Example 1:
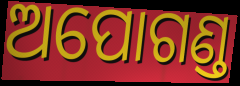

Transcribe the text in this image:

ଅପୋଗଣ୍ଡ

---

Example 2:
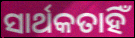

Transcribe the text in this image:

ସାର୍ଥକତାହିଁ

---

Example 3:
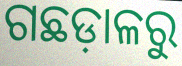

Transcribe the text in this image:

ଗଛଡ଼ାଳରୁ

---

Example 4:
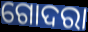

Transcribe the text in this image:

ଗୋଦରା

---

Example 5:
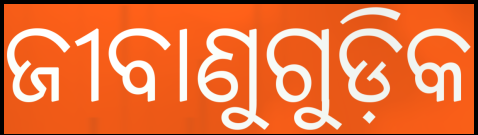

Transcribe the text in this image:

ଜୀବାଣୁଗୁଡ଼ିକ